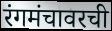
रंगमंचावरची